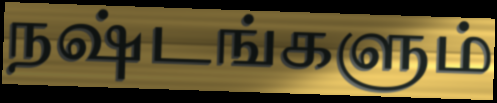
நஷ்டங்களும்